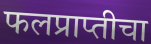
फलप्राप्तीचा